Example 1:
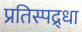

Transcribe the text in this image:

प्रतिस्पद्र्धा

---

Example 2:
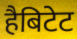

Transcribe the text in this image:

हैबिटेट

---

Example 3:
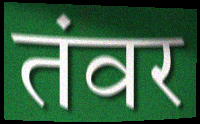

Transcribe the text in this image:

तंवर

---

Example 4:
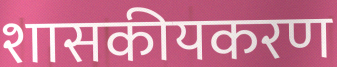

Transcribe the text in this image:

शासकीयकरण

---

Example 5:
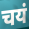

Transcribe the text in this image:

चयं